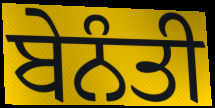
ਬੇਨੰਤੀ